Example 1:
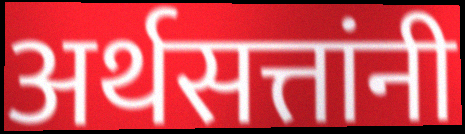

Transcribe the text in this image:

अर्थसत्तांनी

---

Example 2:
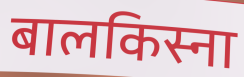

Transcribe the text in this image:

बालकिस्ना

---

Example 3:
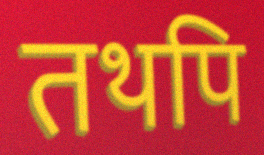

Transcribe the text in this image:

तथपि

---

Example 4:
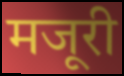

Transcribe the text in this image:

मजूरी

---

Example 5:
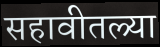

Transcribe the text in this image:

सहावीतल्या